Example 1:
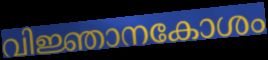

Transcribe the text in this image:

വിജ്ഞാനകോശം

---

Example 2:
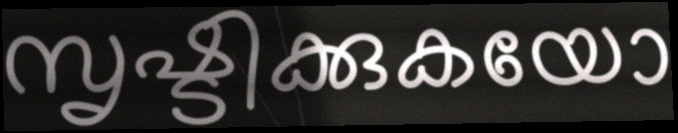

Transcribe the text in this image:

സൃഷ്ടിക്കുകയോ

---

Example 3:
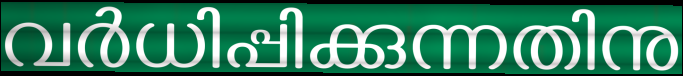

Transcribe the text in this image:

വർധിപ്പിക്കുന്നതിനു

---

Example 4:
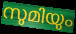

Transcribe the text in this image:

സുമിയും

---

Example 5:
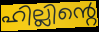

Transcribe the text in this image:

ഹില്ലിന്റെ